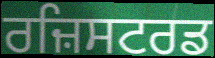
ਰਜ਼ਿਸਟਰਡ